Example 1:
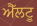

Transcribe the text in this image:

ਐੱਲਟੂ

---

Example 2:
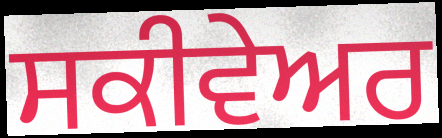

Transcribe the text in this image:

ਸਕੀਵੇਅਰ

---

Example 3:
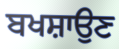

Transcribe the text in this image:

ਬਖਸ਼ਾਉਣ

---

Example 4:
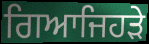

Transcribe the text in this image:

ਗਿਆਜਿਹੜੇ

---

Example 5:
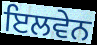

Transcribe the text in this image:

ਇਲਵੇਨ